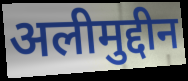
अलीमुद्दीन